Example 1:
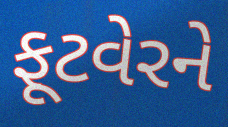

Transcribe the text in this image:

ફૂટવેરને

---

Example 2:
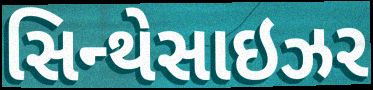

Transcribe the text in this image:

સિન્થેસાઇઝર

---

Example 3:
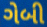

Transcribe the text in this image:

ગેબી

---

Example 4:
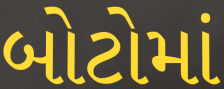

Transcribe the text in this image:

બોટોમાં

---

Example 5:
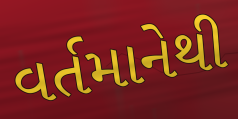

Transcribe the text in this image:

વર્તમાનેથી